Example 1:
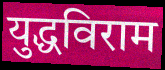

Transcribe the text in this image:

युद्धविराम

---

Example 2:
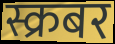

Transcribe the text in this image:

स्‍क्रबर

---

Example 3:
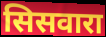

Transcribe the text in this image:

सिसवारा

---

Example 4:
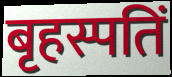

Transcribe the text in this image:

बृहस्पतिं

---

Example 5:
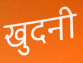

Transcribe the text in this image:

खुदनी